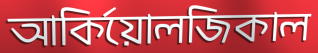
আর্কিয়োলজিকাল